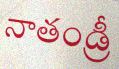
నాతండ్రీ